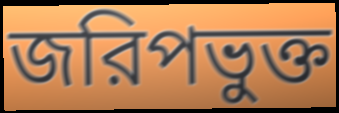
জরিপভুক্ত